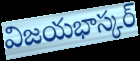
విజయభాస్కర్